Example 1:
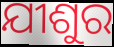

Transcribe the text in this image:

ଯୀଶୁର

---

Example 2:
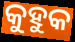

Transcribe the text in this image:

କୁହୁକ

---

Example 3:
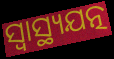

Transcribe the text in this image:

ସ୍ୱାସ୍ଥ୍ୟଯତ୍ନ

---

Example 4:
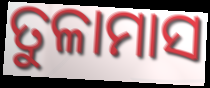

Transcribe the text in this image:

ତୁଳାମାସ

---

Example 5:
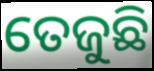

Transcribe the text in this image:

ତେଜୁଛି